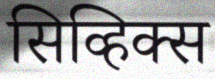
सिव्हिक्स